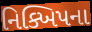
નિક્ખિપના